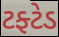
ટફ્ટેડ